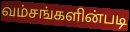
வம்சங்களின்படி